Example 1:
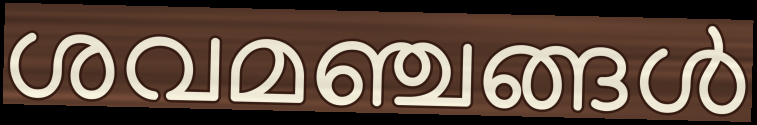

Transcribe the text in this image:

ശവമഞ്ചങ്ങൾ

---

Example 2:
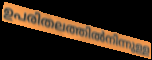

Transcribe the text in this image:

ഉപരിതലത്തിൽനിന്നുള്ള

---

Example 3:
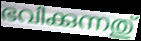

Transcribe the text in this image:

ഭവിക്കുന്നതു്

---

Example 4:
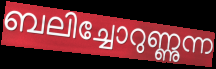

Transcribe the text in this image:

ബലിച്ചോറുണ്ണുന്ന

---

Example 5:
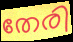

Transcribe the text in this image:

തേരി